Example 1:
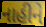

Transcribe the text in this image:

નાહીને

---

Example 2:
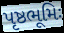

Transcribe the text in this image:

પૃષ્ઠભૂમિઃ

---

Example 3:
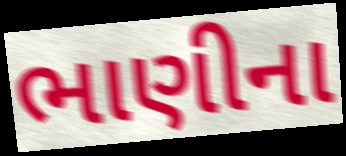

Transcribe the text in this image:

ભાણીના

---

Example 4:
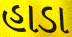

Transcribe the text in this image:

હાડા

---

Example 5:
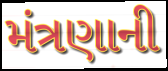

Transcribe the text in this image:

મંત્રણાની